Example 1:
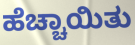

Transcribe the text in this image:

ಹೆಚ್ಚಾಯಿತು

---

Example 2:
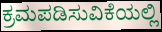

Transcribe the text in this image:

ಕ್ರಮಪಡಿಸುವಿಕೆಯಲ್ಲಿ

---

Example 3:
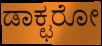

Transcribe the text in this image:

ಡಾಕ್ಟರೋ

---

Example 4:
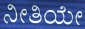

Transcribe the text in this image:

ನೀತಿಯೇ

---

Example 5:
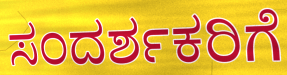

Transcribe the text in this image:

ಸಂದರ್ಶಕರಿಗೆ